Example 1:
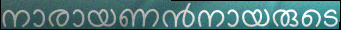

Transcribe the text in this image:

നാരായണൻനായരുടെ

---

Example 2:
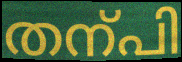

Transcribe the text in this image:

തന്പി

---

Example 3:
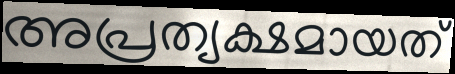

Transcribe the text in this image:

അപ്രത്യക്ഷമായത്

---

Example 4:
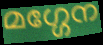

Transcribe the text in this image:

മഗ്ഗേന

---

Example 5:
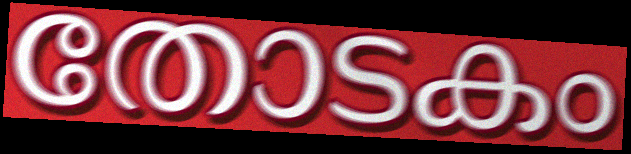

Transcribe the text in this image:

തോടകം